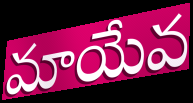
మాయేవ